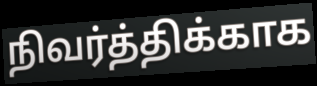
நிவர்த்திக்காக